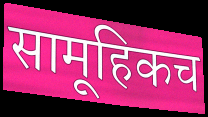
सामूहिकच